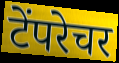
टेंपरेचर